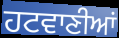
ਹਟਵਾਣੀਆਂ